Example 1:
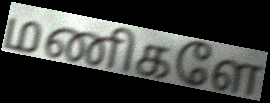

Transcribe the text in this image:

மணிகளே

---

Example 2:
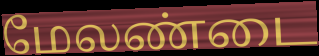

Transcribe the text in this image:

மேலண்டை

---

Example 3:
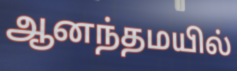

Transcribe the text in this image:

ஆனந்தமயில்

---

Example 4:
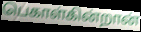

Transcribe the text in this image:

பெகாள்கின்றான்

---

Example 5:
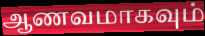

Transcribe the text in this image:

ஆணவமாகவும்